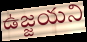
ఉజ్జయని